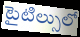
టైటిల్సులో